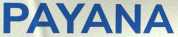
PAYANA